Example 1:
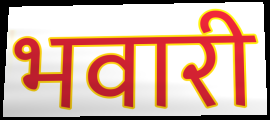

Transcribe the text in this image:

भवारी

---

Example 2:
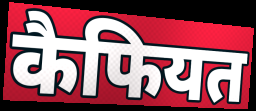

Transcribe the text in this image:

कैफियत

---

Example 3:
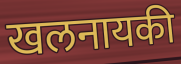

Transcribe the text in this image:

खलनायकी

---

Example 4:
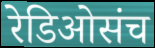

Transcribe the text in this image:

रेडिओसंच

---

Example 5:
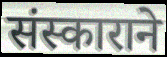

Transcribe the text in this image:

संस्काराने